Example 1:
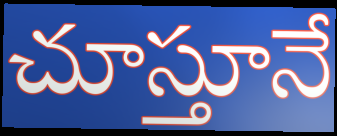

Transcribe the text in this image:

చూస్తూనే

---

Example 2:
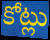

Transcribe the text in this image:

కోట్లు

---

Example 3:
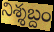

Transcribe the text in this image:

నిశ్శబ్దం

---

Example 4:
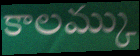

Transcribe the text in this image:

కాలమ్కు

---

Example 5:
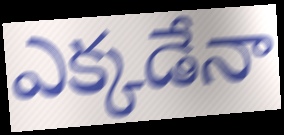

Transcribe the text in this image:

ఎక్కడేనా